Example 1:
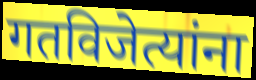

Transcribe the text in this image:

गतविजेत्यांना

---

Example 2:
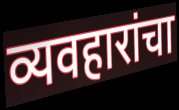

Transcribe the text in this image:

व्यवहारांचा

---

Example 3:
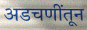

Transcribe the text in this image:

अडचणींतून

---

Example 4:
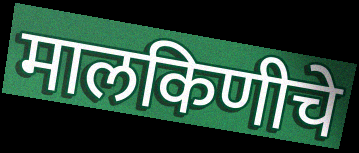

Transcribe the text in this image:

मालकिणीचे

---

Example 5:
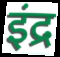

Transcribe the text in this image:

इंद्र